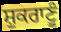
ਸ਼ੁਕਰਾਣੂੰ